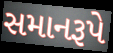
સમાનરૂપે